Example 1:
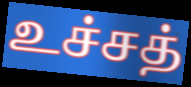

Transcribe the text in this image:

உச்சத்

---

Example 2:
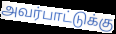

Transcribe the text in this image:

அவர்பாட்டுக்கு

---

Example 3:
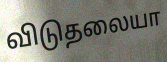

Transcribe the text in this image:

விடுதலையா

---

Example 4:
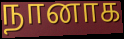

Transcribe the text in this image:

நானாக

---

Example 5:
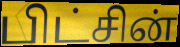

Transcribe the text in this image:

பிட்சின்